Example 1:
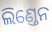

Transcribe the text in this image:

ଲିଣ୍ଡେନ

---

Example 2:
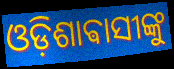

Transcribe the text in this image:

ଓଡ଼ିଶାଵାସୀଙ୍କୁ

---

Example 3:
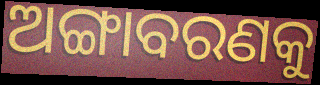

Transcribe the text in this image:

ଅଙ୍ଗାବରଣକୁ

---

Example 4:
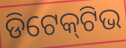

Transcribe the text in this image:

ଡିଟେକ୍‍ଟିଭ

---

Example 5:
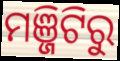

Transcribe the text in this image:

ମଞ୍ଜିଟିରୁ